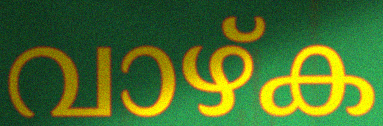
വാഴ്ക